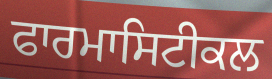
ਫਾਰਮਾਸਿਟੀਕਲ